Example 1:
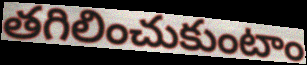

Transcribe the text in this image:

తగిలించుకుంటాం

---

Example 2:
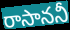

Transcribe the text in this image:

రాసాననీ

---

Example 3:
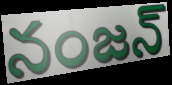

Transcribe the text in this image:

నంజన్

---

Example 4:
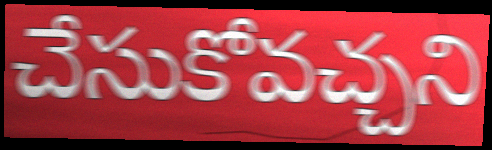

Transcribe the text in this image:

చేసుకోవచ్చని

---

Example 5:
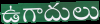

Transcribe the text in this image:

ఉగాదులు